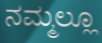
ನಮ್ಮಲ್ಲೂ